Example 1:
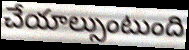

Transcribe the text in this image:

చేయాల్సుంటుంది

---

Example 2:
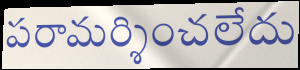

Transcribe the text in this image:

పరామర్శించలేదు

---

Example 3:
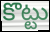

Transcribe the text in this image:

కొట్టు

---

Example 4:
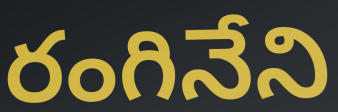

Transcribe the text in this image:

రంగినేని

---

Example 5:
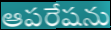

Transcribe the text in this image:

ఆపరేషను